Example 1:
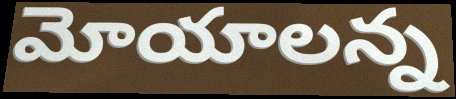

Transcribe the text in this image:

మోయాలన్న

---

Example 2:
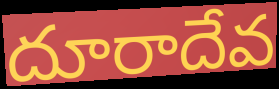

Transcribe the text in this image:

దూరాదేవ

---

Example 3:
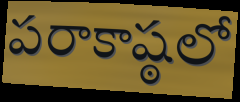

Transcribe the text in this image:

పరాకాష్ఠలో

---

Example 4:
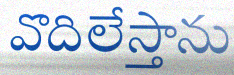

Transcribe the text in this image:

వొదిలేస్తాను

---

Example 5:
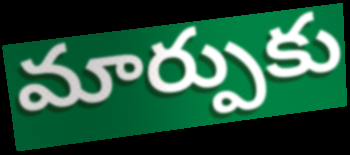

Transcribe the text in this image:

మార్పుకు